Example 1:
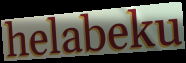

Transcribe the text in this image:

helabeku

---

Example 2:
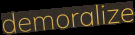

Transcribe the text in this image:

demoralize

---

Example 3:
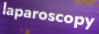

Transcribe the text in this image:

laparoscopy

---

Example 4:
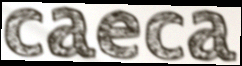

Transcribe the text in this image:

caeca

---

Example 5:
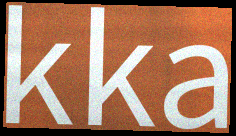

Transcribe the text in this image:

kka